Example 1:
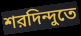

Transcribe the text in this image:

শরদিন্দুতে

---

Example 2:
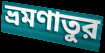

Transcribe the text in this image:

ভ্রমণাতুর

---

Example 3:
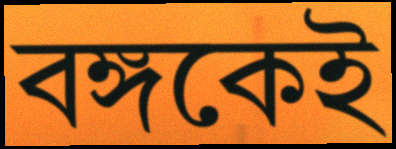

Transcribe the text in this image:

বঙ্গকেই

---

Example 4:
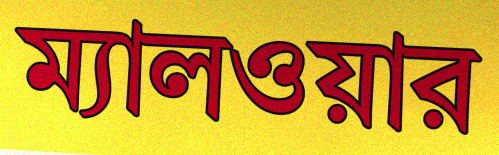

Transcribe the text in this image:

ম্যালওয়ার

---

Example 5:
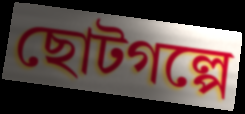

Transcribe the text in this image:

ছোটগল্পে